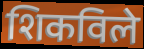
शिकविले